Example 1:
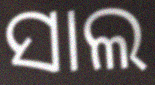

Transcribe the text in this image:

ସାଲ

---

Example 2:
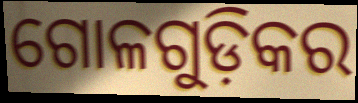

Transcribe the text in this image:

ଗୋଳଗୁଡ଼ିକର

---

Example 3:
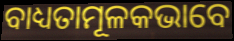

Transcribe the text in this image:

ବାଧ୍ୟତାମୂଳକଭାବେ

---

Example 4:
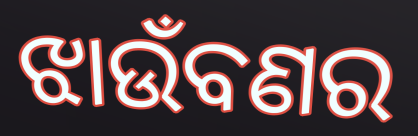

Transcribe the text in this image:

ଝାଉଁବଣର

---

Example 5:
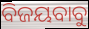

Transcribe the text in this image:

ବିଜୟବାବୁ